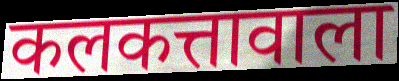
कलकत्तावाला